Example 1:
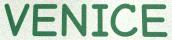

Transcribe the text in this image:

VENICE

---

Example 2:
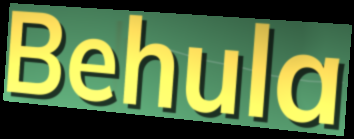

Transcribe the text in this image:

Behula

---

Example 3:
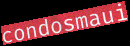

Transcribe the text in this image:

condosmaui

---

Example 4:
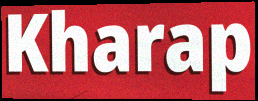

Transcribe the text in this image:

Kharap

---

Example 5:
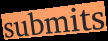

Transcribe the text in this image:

submits